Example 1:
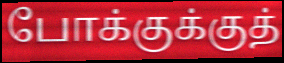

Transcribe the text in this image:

போக்குக்குத்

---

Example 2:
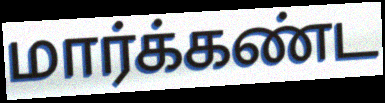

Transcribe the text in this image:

மார்க்கண்ட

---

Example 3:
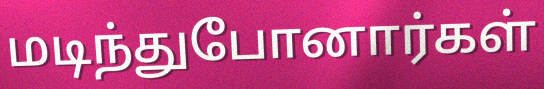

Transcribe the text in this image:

மடிந்துபோனார்கள்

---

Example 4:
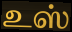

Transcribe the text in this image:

உஸ்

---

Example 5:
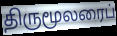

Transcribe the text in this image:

திருமூலரைப்